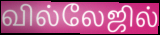
வில்லேஜில்